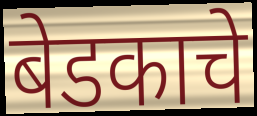
बेडकाचे